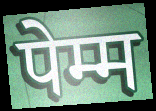
पेम्म